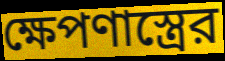
ক্ষেপণাস্ত্রের